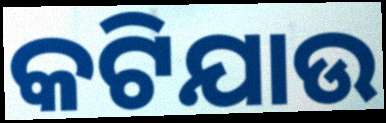
କଟିଯାଉ